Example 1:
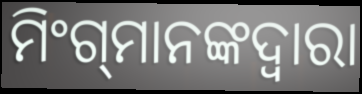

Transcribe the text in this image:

ମିଂଗ୍‍ମାନଙ୍କଦ୍ୱାରା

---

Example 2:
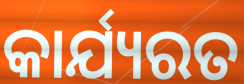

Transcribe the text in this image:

କାର୍ଯ୍ୟରତ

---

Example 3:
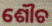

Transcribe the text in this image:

ଶୌଚ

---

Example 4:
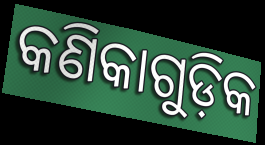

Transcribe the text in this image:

କଣିକାଗୁଡ଼ିକ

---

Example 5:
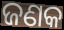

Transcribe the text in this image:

ଜଣକ